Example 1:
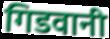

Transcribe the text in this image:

गिडवानी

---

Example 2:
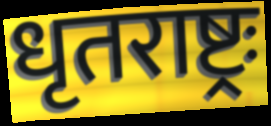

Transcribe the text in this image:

धृतराष्ट्रः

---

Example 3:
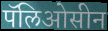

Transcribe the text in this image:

पॅलिओसीन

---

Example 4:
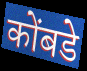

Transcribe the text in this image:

कोंबडे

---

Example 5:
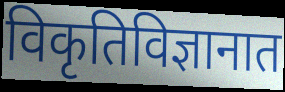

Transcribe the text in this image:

विकृतिविज्ञानात